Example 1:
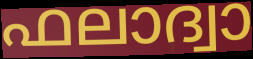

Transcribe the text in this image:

ഫലാദ്വാ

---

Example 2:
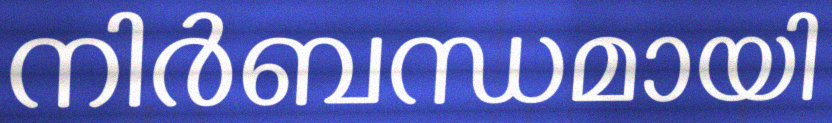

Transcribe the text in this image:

നിർബന്ധമായി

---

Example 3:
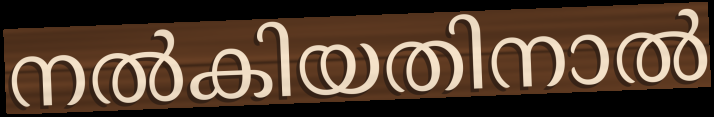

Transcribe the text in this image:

നൽകിയതിനാൽ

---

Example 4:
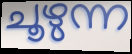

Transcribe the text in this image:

ചൂഴുന്ന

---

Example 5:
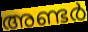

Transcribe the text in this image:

അണ്ടർ